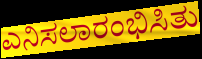
ಎನಿಸಲಾರಂಭಿಸಿತು